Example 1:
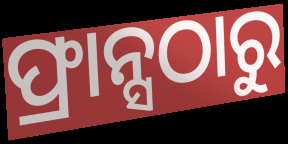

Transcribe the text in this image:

ଫ୍ରାନ୍ସଠାରୁ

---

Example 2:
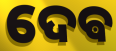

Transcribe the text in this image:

ଦେଵ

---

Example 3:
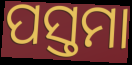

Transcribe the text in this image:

ପସ୍ତମା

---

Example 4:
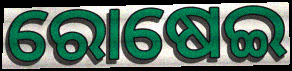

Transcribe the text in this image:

ରୋଷେଇ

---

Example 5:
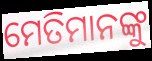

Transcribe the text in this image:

ମେତିମାନଙ୍କୁ